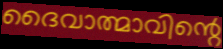
ദൈവാത്മാവിന്റെ